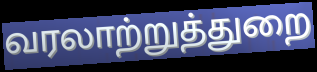
வரலாற்றுத்துறை